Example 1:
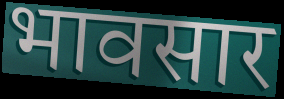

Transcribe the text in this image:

भावसार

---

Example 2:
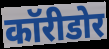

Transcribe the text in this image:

कॉरीडोर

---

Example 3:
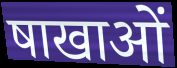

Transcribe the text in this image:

षाखाओं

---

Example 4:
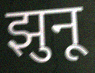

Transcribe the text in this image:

झुनू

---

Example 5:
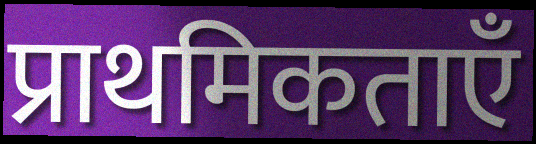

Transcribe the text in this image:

प्राथमिकताएँ